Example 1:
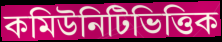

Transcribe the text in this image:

কমিউনিটিভিত্তিক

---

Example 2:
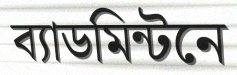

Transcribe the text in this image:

ব্যাডমিন্টনে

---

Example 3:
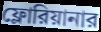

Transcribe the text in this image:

ফ্লোরিয়ানার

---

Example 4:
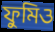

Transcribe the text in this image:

ফুমিও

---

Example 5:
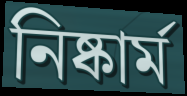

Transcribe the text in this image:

নিষ্কার্ম